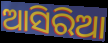
ଆସିରିଆ